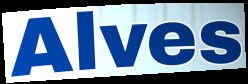
Alves